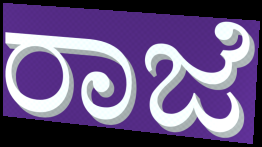
ರಾಜೆ